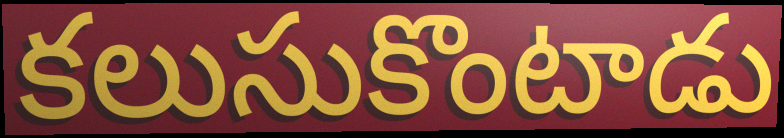
కలుసుకొంటాడు